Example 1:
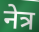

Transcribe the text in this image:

नेत्र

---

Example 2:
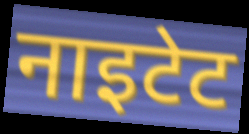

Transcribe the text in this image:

नाइटेट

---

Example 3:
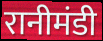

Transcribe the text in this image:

रानीमंडी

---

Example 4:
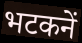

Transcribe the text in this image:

भटकनें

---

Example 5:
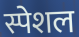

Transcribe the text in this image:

स्पेशल